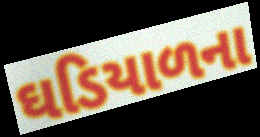
ઘડિયાળના